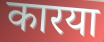
कारया